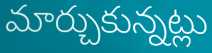
మార్చుకున్నట్లు